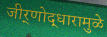
जीर्णोद्धारामुळे